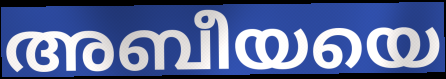
അബീയയെ